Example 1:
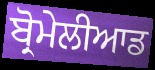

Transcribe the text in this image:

ਬ੍ਰੋਮੇਲੀਆਡ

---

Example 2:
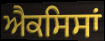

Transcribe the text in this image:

ਐਕਸਿਸਾਂ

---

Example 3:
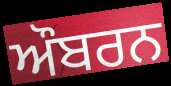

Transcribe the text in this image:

ਔਬਰਨ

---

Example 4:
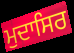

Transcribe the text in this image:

ਮੁਦਾਸਿਰ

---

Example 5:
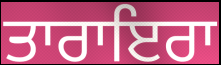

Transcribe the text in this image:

ਤਾਰਾਇਰਾ